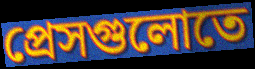
প্রেসগুলোতে